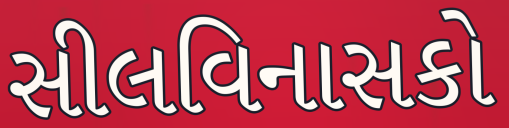
સીલવિનાસકો